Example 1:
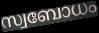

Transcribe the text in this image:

സ്വബോധം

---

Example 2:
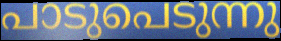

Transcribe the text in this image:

പാടുപെടുന്നു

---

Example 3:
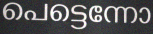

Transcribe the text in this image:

പെട്ടെന്നോ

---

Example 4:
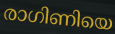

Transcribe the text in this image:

രാഗിണിയെ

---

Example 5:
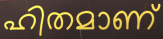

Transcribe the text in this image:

ഹിതമാണ്